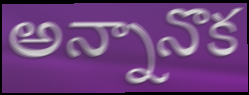
అన్నానొక